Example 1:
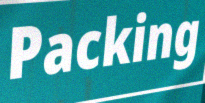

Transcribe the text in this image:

Packing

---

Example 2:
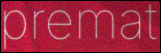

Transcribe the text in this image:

premat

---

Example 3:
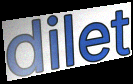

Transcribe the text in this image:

dilet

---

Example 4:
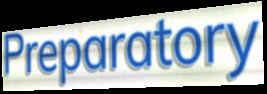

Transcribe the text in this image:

Preparatory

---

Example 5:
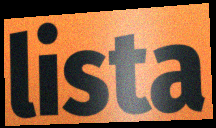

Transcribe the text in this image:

lista